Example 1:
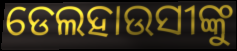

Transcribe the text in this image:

ଡେଲହାଉସୀଙ୍କୁ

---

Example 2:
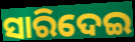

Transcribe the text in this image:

ସାରିଦେଇ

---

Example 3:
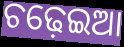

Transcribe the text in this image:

ଚଢ଼େଇଆ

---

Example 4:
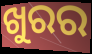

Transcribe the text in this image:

ଖୁରର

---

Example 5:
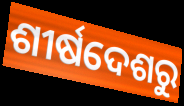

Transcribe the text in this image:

ଶୀର୍ଷଦେଶରୁ